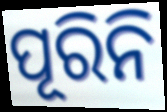
ପୂରିନି